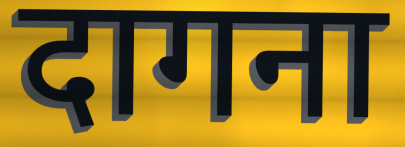
दागना